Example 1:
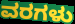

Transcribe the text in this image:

ವರಗಳು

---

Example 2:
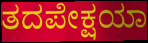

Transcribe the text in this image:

ತದಪೇಕ್ಷಯಾ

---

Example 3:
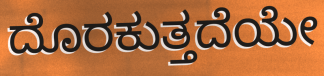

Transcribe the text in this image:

ದೊರಕುತ್ತದೆಯೇ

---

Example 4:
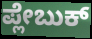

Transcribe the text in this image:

ಪ್ಲೇಬುಕ್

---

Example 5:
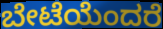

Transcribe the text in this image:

ಬೇಟೆಯೆಂದರೆ